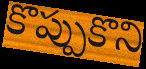
కొప్పుకొని